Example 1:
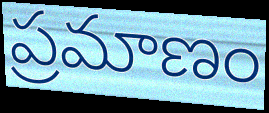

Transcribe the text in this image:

ప్రమాణం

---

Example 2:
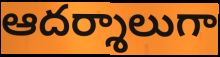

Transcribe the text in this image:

ఆదర్శాలుగా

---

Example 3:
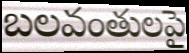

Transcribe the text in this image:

బలవంతులపై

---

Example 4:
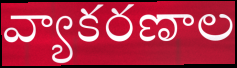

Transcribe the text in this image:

వ్యాకరణాల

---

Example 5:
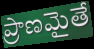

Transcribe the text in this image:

ప్రాణమైతే